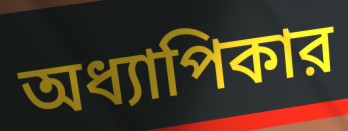
অধ্যাপিকার